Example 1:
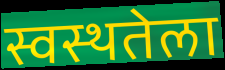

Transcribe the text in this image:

स्वस्थतेला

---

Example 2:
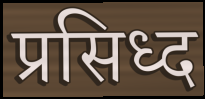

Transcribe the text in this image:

प्रसिध्द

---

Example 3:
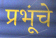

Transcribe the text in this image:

प्रभूंचे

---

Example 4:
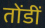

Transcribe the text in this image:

तोंडीं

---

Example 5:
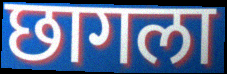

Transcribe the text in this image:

छागला